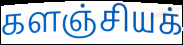
களஞ்சியக்